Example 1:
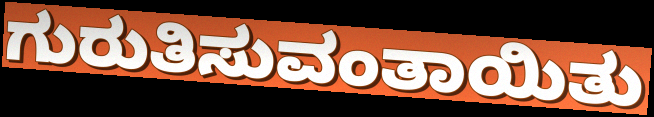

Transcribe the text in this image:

ಗುರುತಿಸುವಂತಾಯಿತು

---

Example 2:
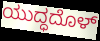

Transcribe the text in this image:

ಯುದ್ಧದೊಳ್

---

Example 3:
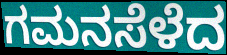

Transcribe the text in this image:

ಗಮನಸೆಳೆದ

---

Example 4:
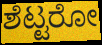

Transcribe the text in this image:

ಶೆಟ್ಟರೋ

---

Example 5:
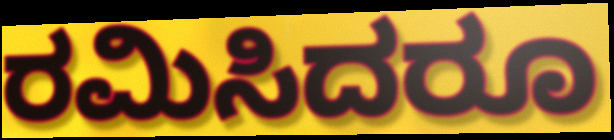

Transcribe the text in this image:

ರಮಿಸಿದರೂ